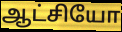
ஆட்சியோ